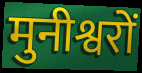
मुनीश्वरों